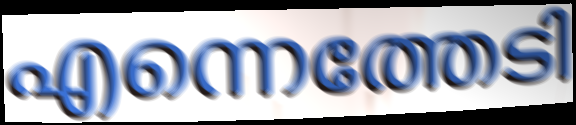
എന്നെത്തേടി